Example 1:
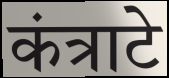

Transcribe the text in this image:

कंत्राटे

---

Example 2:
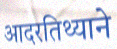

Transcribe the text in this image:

आदरतिथ्याने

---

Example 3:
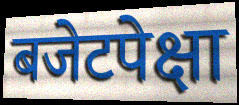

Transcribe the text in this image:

बजेटपेक्षा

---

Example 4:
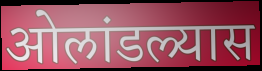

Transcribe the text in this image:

ओलांडल्यास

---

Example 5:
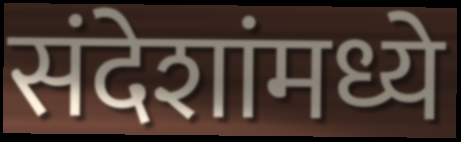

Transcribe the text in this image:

संदेशांमध्ये